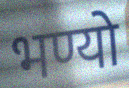
भण्यो